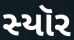
સ્યૉર